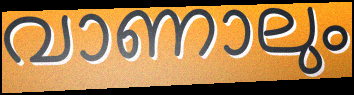
വാണാലും